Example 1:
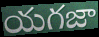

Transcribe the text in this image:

యగజా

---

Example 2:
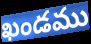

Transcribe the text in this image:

ఖండము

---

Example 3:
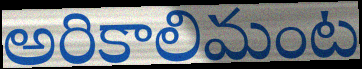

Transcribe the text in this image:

అరికాలిమంట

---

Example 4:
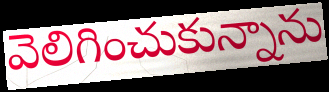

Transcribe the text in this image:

వెలిగించుకున్నాను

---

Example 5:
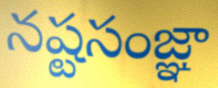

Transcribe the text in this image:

నష్టసంజ్ఞా